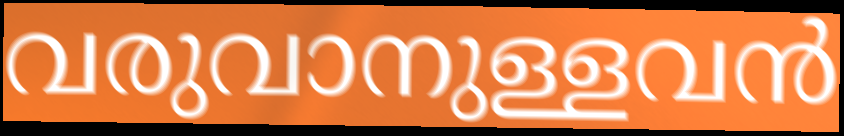
വരുവാനുള്ളവൻ